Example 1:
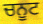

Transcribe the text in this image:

ਚਨੂਟ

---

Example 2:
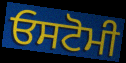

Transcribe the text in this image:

ਓਸਟੋਮੀ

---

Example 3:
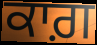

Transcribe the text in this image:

ਕਾਗ਼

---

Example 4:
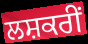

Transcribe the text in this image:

ਲਸ਼ਕਰੀਂ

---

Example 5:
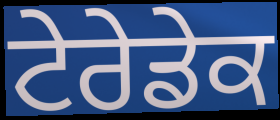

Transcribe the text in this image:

ਟੇਰੇਡੇਕ